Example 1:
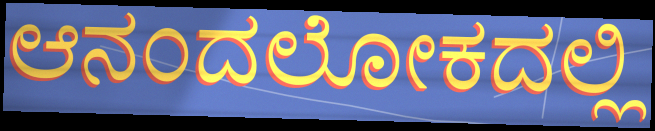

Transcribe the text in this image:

ಆನಂದಲೋಕದಲ್ಲಿ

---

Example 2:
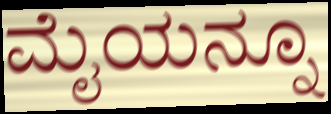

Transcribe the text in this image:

ಮೈಯನ್ನೂ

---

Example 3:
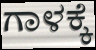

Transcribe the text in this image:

ಗಾಳಕ್ಕೆ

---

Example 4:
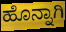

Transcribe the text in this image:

ಹೊನ್ನಾಗಿ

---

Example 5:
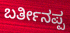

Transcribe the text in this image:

ಬರ್ತೀನಪ್ಪ